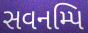
સવનમ્પિ